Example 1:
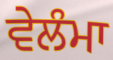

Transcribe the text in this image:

ਵੇਲੰਮਾ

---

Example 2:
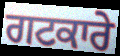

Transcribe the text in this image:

ਗਟਕਾਰੇ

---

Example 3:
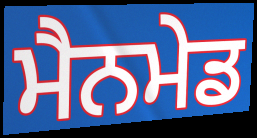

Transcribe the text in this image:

ਮੈਨਮੇਡ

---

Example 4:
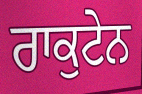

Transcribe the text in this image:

ਰਾਕੁਟੇਨ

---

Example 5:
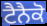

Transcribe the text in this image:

ਟੈਨੈਕੋ